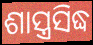
ଶାସ୍ତ୍ରସିଦ୍ଧ